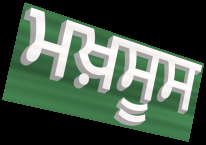
ਮਖ਼ਸੂਸ